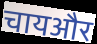
चायऔर